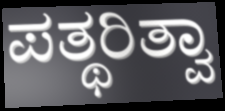
ಪತ್ಥರಿತ್ವಾ